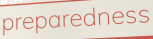
preparedness